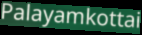
Palayamkottai